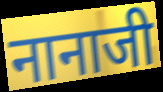
नानाजी